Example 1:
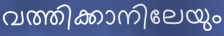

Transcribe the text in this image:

വത്തിക്കാനിലേയും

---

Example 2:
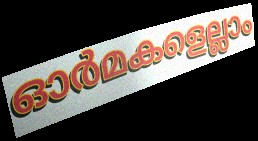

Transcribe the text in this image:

ഓർമകളെല്ലാം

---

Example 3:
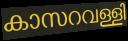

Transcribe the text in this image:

കാസറവള്ളി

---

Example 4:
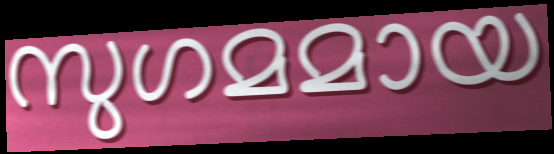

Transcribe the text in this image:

സുഗമമായ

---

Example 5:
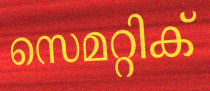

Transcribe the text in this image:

സെമറ്റിക്